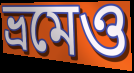
ভ্রমেও